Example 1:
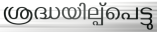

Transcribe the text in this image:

ശ്രദ്ധയില്പ്പെട്ടു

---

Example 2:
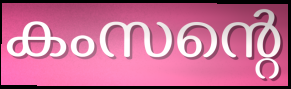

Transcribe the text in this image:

കംസന്റെ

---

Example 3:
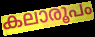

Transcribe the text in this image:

കലാരൂപം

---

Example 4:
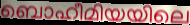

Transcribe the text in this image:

ബൊഹീമിയയിലെ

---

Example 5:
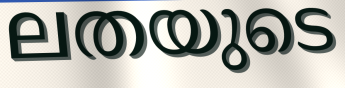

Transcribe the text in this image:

ലതയുടെ